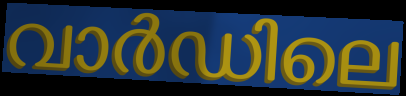
വാർഡിലെ